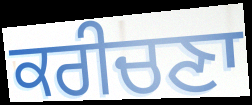
ਕਰੀਚਣਾ